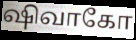
ஷிவாகோ